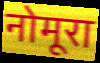
नोमूरा